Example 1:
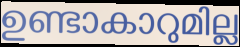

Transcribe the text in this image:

ഉണ്ടാകാറുമില്ല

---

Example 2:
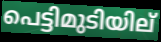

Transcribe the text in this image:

പെട്ടിമുടിയില്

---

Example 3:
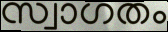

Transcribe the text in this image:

സ്വാഗതം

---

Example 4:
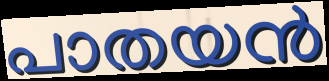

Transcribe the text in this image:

പാതയൻ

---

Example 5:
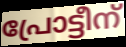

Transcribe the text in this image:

പ്രോട്ടീന്